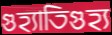
গুহ্যাতিগুহ্য